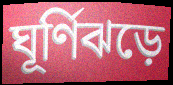
ঘূর্ণিঝড়ে